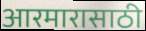
आरमारासाठी